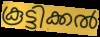
കൂട്ടിക്കൽ